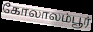
கோலாலம்பூர்